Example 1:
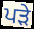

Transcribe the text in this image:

ਪੜੇ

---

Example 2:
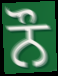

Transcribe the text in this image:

ਨੌ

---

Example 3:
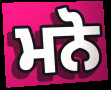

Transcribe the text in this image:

ਮਨੋ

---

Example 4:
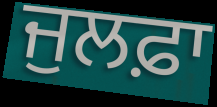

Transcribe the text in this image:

ਜੁਲਫ਼ਾ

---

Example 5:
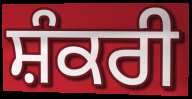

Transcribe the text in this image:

ਸ਼ੰਕਰੀ